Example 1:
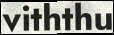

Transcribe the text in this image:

viththu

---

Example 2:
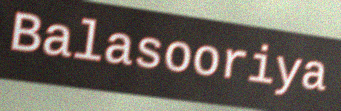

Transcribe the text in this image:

Balasooriya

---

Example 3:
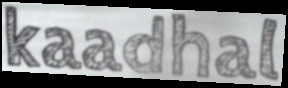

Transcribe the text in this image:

kaadhal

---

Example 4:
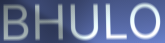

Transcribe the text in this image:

BHULO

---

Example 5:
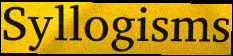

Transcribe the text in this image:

Syllogisms